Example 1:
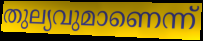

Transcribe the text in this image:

തുല്യവുമാണെന്ന്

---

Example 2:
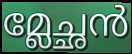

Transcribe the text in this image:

മ്ലേച്ഛൻ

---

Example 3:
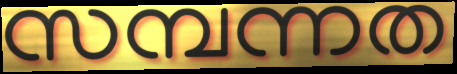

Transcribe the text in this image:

സമ്പന്നത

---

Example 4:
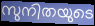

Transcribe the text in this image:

സുനിതയുടെ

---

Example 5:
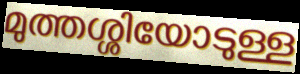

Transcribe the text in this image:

മുത്തശ്ശിയോടുള്ള